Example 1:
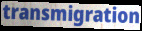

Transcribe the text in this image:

transmigration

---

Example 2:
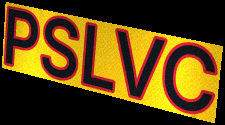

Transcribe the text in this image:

PSLVC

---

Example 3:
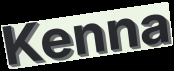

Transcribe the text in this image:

Kenna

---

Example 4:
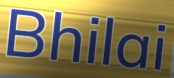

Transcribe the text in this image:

Bhilai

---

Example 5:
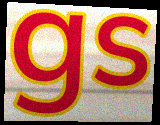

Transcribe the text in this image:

gs